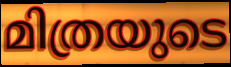
മിത്രയുടെ